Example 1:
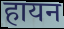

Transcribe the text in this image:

हायन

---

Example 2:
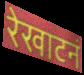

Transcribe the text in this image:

रेखाटनं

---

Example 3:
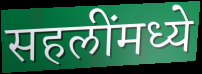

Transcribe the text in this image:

सहलींमध्ये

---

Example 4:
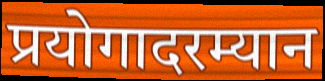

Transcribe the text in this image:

प्रयोगादरम्यान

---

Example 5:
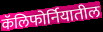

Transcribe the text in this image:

कॅलिफोर्नियातील